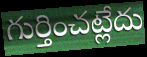
గుర్తించట్లేదు